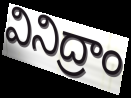
వినిద్రాం